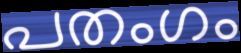
പതംഗം